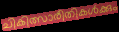
ചികിത്സാരീതികൾക്കും